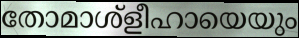
തോമാശ്ളീഹായെയും